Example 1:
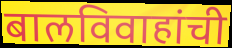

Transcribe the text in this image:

बालविवाहांची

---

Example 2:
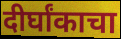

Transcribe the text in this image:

दीर्घांकाचा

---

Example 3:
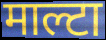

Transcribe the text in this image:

माल्टा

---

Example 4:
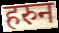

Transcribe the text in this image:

हरुन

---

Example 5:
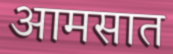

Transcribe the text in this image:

आमसात